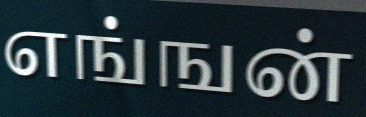
எங்ஙன்